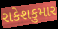
રાકેશકુમાર